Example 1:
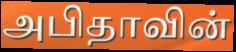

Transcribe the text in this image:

அபிதாவின்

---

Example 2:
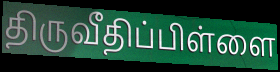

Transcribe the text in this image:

திருவீதிப்பிள்ளை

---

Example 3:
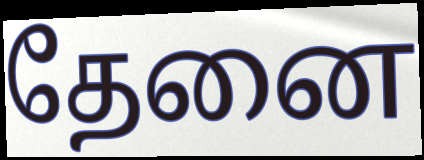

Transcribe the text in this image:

தேனை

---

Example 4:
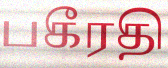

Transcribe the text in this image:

பகீரதி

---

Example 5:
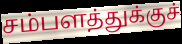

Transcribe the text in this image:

சம்பளத்துக்குச்